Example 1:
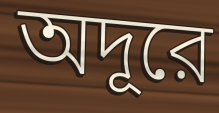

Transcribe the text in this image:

অদূরে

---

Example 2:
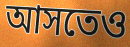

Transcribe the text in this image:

আসতেও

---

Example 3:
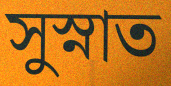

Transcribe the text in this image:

সুস্নাত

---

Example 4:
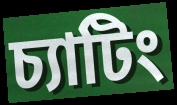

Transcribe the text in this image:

চ্যাটিং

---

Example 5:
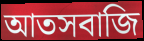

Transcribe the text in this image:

আতসবাজি